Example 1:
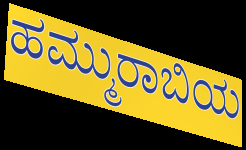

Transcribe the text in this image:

ಹಮ್ಮುರಾಬಿಯ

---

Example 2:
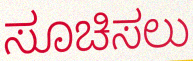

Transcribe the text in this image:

ಸೂಚಿಸಲು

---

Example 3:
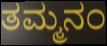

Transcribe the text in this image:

ತಮ್ಮನಂ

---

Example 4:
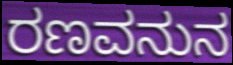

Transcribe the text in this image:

ರಣವನುನ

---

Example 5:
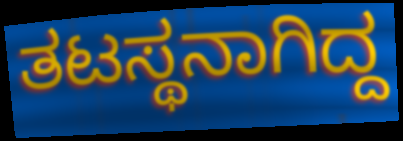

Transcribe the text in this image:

ತಟಸ್ಥನಾಗಿದ್ದ